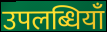
उपलब्धियाँ